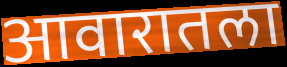
आवारातला